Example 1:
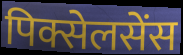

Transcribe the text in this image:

पिक्सेलसेंस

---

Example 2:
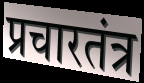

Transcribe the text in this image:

प्रचारतंत्र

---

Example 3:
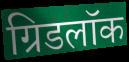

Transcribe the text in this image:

ग्रिडलॉक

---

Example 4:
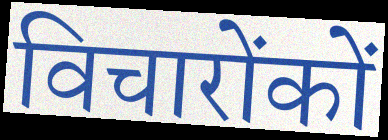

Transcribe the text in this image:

विचारोंकों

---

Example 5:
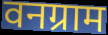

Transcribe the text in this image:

वनग्राम